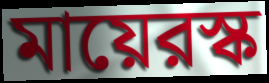
মায়েরস্ক